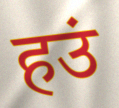
हउं